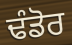
ਢੰਡੋਰ